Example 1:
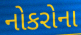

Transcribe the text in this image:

નોકરોના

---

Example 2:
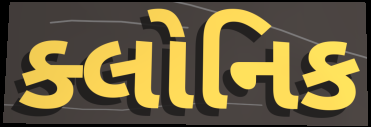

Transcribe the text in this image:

ક્લોનિક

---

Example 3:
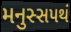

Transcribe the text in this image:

મનુસ્સપથં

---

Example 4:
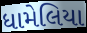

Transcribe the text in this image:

ધામેલિયા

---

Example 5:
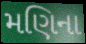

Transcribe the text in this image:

મણિના